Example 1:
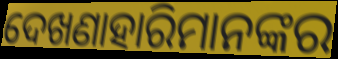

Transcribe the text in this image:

ଦେଖଣାହାରିମାନଙ୍କର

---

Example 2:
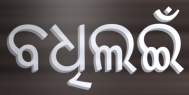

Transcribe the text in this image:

ବଧିଲଇଁ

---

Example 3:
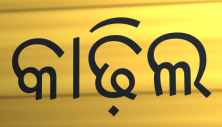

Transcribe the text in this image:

କାଢ଼ିଲ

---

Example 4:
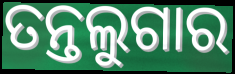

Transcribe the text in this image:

ତନ୍ତଲୁଗାର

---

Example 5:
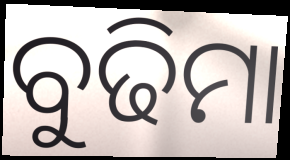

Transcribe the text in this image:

ବୁଢିମା